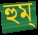
হুম্